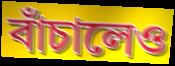
বাঁচালেও